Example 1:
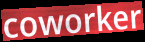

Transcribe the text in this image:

coworker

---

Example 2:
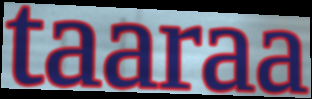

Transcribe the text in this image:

taaraa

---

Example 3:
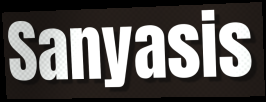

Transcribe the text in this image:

Sanyasis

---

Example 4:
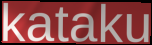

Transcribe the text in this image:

kataku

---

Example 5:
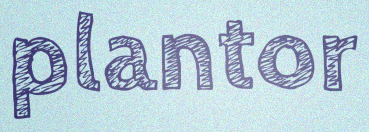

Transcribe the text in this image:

plantor